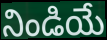
నిండియే